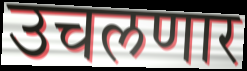
उचलणार